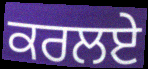
ਕਰਲਏ